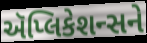
ઍપ્લિકેશન્સને